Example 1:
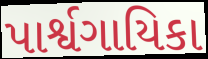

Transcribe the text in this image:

પાર્શ્વગાયિકા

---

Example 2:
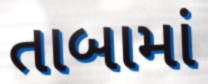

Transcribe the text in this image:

તાબામાં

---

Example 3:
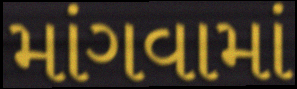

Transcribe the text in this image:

માંગવામાં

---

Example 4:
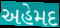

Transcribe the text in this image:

અહેમદ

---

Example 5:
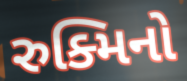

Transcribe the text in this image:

રુક્મિનો